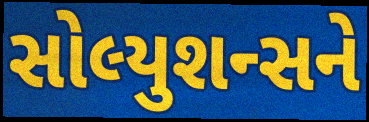
સોલ્યુશન્સને